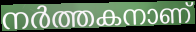
നർത്തകനാണ്